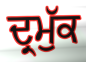
ਦ੍ਰਮੁੱਕ